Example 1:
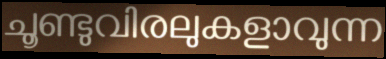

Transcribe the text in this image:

ചൂണ്ടുവിരലുകളാവുന്ന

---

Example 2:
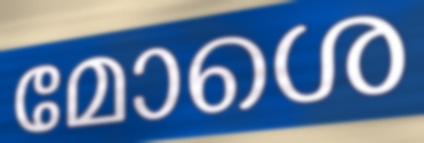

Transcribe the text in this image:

മോശെ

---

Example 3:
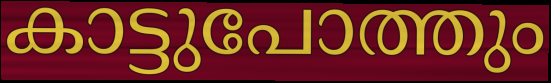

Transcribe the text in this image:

കാട്ടുപോത്തും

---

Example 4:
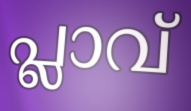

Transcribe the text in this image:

പ്ലാവ്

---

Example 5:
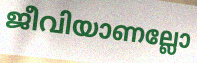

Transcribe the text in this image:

ജീവിയാണല്ലോ